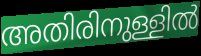
അതിരിനുള്ളിൽ